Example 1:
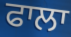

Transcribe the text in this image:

ਫਾਲਾ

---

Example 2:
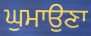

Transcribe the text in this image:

ਘੁਮਾਉਣਾ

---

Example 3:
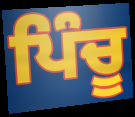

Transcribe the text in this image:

ਪਿੰਚੂ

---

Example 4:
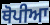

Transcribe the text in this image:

ਥੋਪੀਆ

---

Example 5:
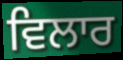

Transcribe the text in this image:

ਵਿਲਾਰ